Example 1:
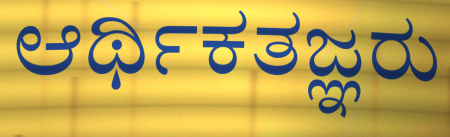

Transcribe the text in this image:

ಆರ್ಥಿಕತಜ್ಞರು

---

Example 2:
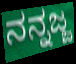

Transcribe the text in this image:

ನನ್ನಜ್ಜ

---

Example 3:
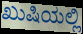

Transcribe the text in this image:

ಖುಷಿಯಲ್ಲಿ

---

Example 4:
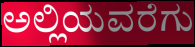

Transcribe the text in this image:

ಅಲ್ಲಿಯವರೆಗು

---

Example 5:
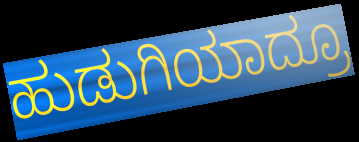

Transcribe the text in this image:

ಹುಡುಗಿಯಾದ್ರೂ